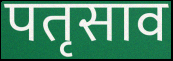
पतृसाव